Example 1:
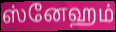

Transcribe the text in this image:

ஸ்னேஹம்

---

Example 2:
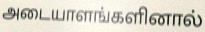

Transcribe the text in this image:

அடையாளங்களினால்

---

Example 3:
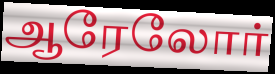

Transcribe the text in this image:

ஆரேலோர்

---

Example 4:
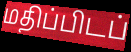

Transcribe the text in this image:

மதிப்பிடப்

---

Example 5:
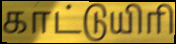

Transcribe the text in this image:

காட்டுயிரி